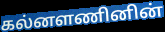
கல்னளணினின்